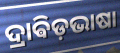
ଦ୍ରାଵିଡ଼ଭାଷା